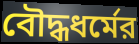
বৌদ্ধধর্মের